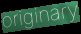
originary